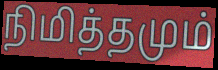
நிமித்தமும்